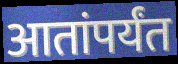
आतांपर्यंत